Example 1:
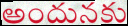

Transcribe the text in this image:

అందునకు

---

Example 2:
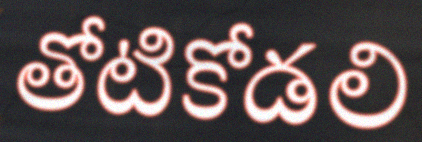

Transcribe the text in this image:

తోటికోడలి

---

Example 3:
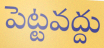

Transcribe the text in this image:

పెట్టవద్దు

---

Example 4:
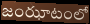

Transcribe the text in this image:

జంఝాటంలో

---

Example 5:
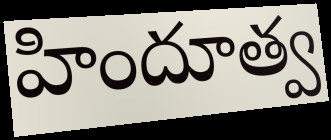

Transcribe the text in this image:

హిందూత్వ